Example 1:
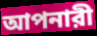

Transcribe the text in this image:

আপনারী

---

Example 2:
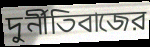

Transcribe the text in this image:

দুর্নীতিবাজের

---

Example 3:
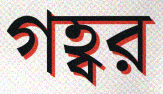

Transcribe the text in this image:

গহ্বর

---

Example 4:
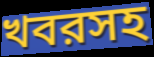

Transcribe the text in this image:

খবরসহ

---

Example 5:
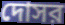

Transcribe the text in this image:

দোসর